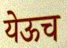
येऊच